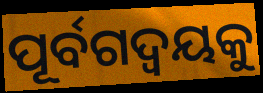
ପୂର୍ବଗଦ୍ଵୟକୁ